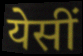
येसीं